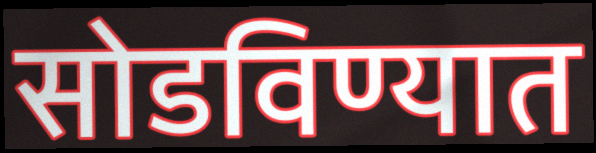
सोडविण्यात